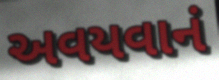
અવયવાનં